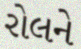
રોલને